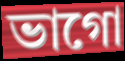
ভাগো